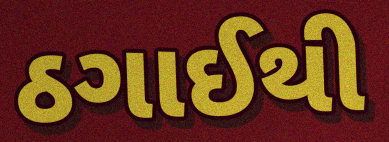
ઠગાઈથી